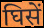
घिसें